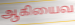
ஆகியைவ